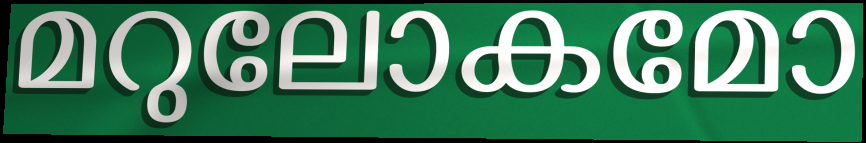
മറുലോകമോ